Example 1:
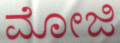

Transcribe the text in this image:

ಮೋಜಿ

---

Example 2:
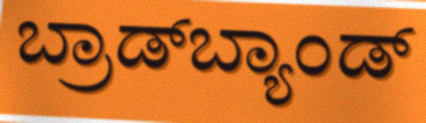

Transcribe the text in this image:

ಬ್ರಾಡ್‌ಬ್ಯಾಂಡ್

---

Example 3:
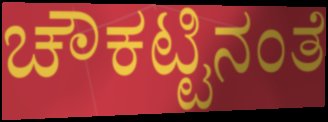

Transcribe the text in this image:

ಚೌಕಟ್ಟಿನಂತೆ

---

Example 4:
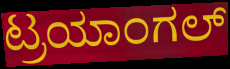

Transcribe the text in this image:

ಟ್ರಯಾಂಗಲ್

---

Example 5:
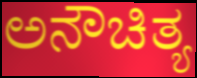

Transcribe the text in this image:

ಅನೌಚಿತ್ಯ